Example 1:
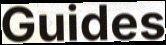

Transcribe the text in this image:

Guides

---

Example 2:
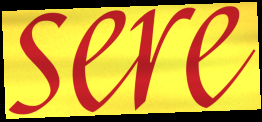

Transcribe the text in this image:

sere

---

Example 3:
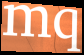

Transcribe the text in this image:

mq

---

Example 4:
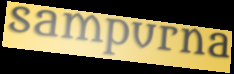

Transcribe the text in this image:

sampurna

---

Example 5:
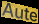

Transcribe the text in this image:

Aute